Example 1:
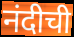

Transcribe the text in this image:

नंदीची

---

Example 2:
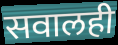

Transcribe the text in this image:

सवालही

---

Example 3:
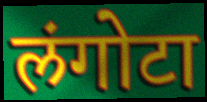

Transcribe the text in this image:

लंगोटा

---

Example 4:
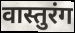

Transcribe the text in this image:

वास्तुरंग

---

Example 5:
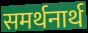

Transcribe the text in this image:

समर्थनार्थ